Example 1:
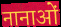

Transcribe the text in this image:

नानाओं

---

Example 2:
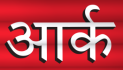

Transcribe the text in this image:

आर्क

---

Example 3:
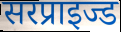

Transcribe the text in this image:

सरप्राइज्ड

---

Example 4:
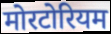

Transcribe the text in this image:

मोरटोरियम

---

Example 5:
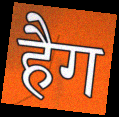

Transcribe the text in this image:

हैग